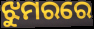
ଝୁମରରେ